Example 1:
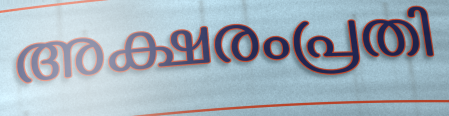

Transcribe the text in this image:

അക്ഷരംപ്രതി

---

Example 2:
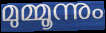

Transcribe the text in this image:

മുമ്മൂന്നും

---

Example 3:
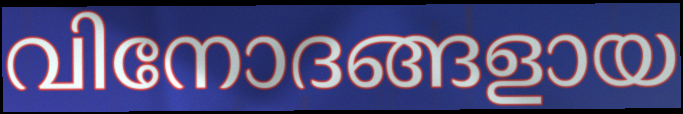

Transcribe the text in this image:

വിനോദങ്ങളായ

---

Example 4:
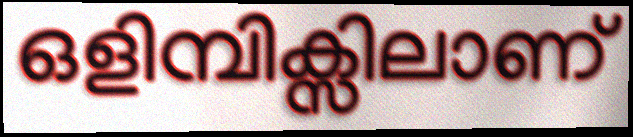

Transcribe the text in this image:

ഒളിമ്പിക്സിലാണ്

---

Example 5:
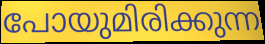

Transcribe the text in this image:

പോയുമിരിക്കുന്ന